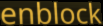
enblock